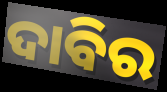
ଦାବିର